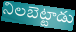
నిలబెట్టాడు